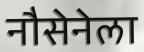
नौसेनेला